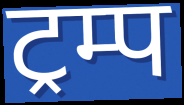
ट्रम्‍प